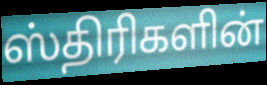
ஸ்திரிகளின்